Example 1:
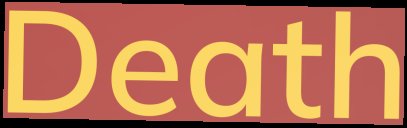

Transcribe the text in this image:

Death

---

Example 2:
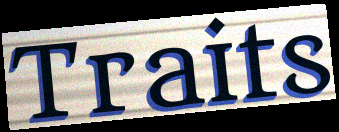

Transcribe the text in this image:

Traits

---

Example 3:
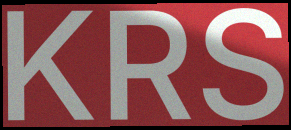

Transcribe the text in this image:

KRS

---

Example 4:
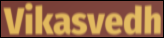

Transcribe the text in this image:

Vikasvedh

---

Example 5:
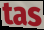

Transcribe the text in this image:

tas